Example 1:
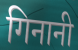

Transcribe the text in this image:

गिनानी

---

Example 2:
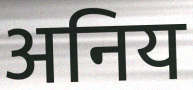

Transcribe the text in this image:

अनिय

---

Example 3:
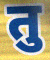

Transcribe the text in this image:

तु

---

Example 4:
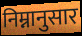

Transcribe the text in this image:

निम्नानुसार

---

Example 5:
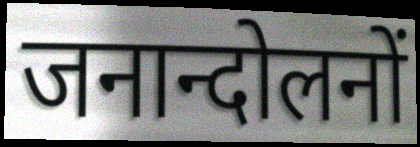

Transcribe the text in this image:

जनान्दोलनों